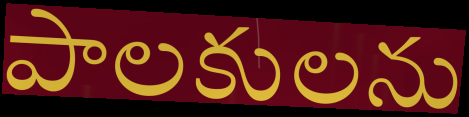
పాలకులను